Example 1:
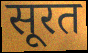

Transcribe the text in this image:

सूरत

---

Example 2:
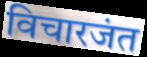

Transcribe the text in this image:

विचारजंत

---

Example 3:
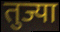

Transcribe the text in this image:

तुज्या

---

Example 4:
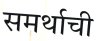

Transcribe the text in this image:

समर्थाची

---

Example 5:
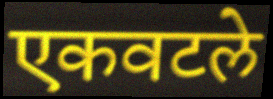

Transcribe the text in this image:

एकवटले